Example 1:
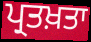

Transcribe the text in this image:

ਪ੍ਰਤਖ਼ਤਾ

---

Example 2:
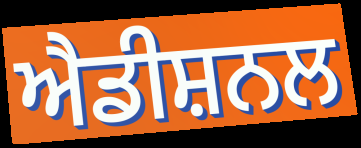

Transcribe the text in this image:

ਐਡੀਸ਼ਨਲ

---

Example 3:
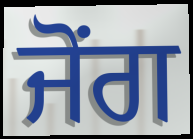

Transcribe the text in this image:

ਜੋਂਗ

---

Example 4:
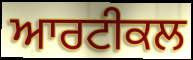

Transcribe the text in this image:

ਆਰਟੀਕਲ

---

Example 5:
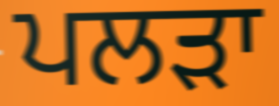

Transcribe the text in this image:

ਪਲੜਾ